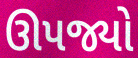
ઊપજ્યો